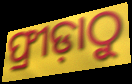
ଫ୍ରୀଡ଼ାଠୁ